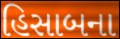
હિસાબના